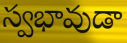
స్వభావుడా